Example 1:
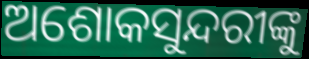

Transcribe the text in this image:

ଅଶୋକସୁନ୍ଦରୀଙ୍କୁ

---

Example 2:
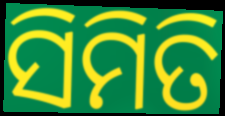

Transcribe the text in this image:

ସିମିତି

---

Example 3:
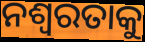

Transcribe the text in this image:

ନଶ୍ବରତାକୁ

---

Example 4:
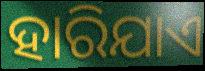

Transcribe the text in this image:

ହାରିଯାଏ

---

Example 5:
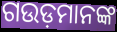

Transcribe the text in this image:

ଗଉଡ଼ମାନଙ୍କ